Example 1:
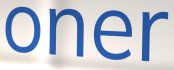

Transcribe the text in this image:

oner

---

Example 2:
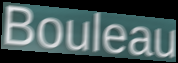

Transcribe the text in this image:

Bouleau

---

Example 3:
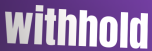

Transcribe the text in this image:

withhold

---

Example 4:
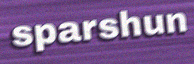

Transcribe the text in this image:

sparshun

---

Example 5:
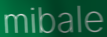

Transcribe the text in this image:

mibale